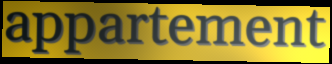
appartement